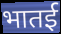
भातई